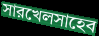
সারখেলসাহেব